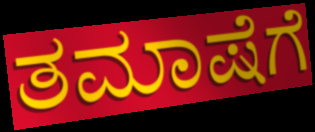
ತಮಾಷೆಗೆ